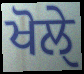
ਖੋਲੑੇ